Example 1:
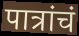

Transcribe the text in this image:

पात्रांचं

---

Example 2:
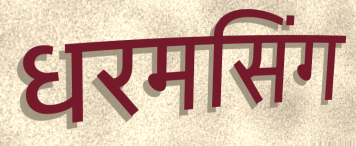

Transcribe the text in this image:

धरमसिंग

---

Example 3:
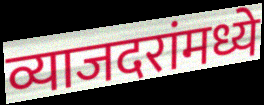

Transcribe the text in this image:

व्याजदरांमध्ये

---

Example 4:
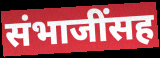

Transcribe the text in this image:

संभाजींसह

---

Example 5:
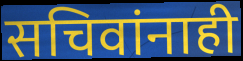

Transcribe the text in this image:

सचिवांनाही